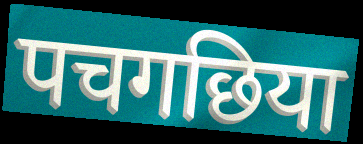
पचगछिया